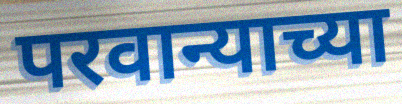
परवान्याच्या